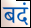
बदं